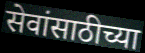
सेवांसाठीच्या